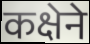
कक्षेने